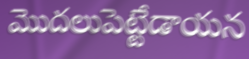
మొదలుపెట్టేడాయన